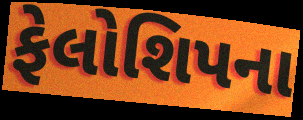
ફેલોશિપના